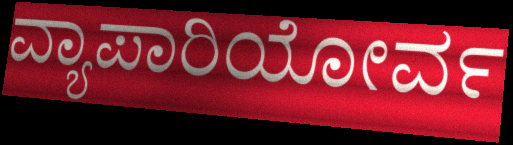
ವ್ಯಾಪಾರಿಯೋರ್ವ